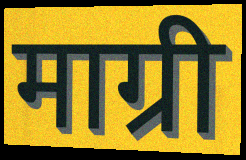
माग्री